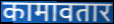
कामावतार